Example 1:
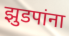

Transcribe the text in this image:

झुडपांना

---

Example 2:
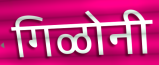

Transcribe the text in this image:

गिळोनी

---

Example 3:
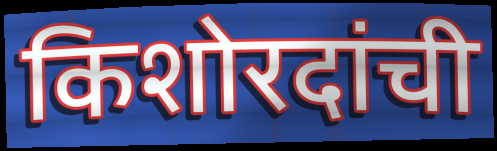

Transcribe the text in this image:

किशोरदांची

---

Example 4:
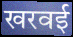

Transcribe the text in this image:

खरवई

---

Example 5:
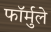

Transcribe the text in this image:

फॉर्मुले